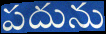
పదును